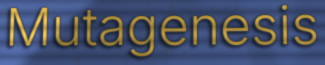
Mutagenesis